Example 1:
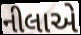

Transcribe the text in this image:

નીલાએ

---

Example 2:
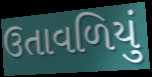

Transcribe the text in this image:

ઉતાવળિયું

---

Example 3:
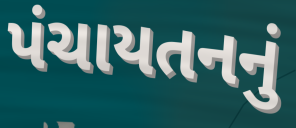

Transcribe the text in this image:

પંચાયતનનું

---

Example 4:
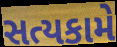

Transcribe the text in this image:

સત્યકામે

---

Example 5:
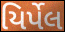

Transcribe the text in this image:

યિર્પેલ